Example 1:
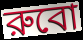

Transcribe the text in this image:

রুবো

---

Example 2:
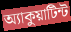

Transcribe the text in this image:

অ্যাকুয়াটিন্ট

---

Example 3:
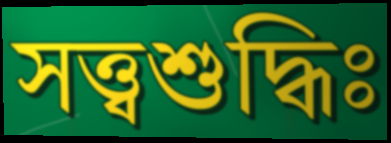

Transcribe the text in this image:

সত্ত্বশুদ্ধিঃ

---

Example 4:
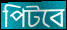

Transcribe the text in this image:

পিটবে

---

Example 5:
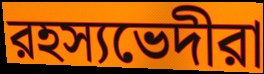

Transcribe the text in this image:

রহস্যভেদীরা